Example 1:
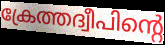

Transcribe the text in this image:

ക്രേത്തദ്വീപിന്റെ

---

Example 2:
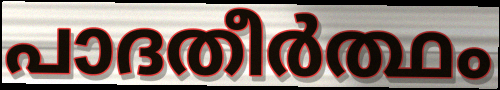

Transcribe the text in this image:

പാദതീർത്ഥം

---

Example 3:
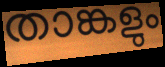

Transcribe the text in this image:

താങ്കളും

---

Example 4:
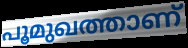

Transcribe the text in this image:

പൂമുഖത്താണ്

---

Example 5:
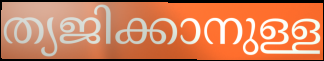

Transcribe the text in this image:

ത്യജിക്കാനുള്ള